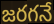
జరగనే